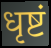
धृष्टं